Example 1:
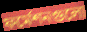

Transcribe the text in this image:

ফর্মেশনগুলো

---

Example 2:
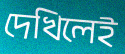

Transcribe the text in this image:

দেখিলেই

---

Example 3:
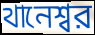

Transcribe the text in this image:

থানেশ্বর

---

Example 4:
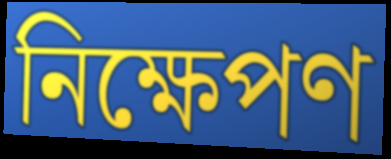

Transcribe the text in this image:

নিক্ষেপণ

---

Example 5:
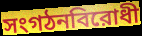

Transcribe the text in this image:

সংগঠনবিরোধী